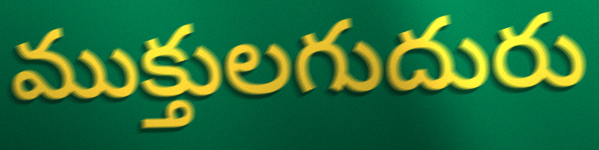
ముక్తులగుదురు